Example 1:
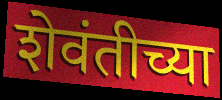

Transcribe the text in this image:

शेवंतीच्या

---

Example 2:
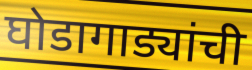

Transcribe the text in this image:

घोडागाड्यांची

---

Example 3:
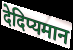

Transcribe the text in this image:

देदिप्यमान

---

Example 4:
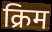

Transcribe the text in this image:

क्रिम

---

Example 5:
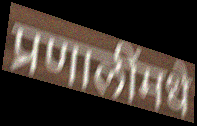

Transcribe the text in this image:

प्रणालींमधे